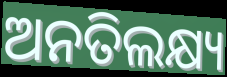
ଅନତିଲକ୍ଷ୍ୟ